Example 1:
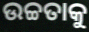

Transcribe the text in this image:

ଉଚ୍ଚତାକୁ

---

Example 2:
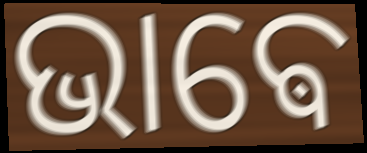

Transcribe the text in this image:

ଭାଵେ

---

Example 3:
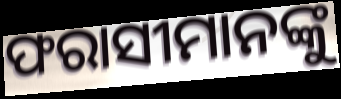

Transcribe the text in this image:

ଫରାସୀମାନଙ୍କୁ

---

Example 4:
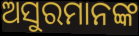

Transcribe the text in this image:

ଅସୁରମାନଙ୍କ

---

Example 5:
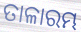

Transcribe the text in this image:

ତାଳାରମ୍ଭ